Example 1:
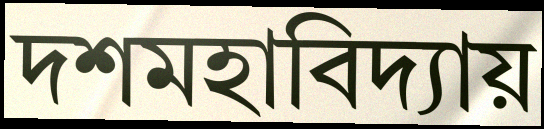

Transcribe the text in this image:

দশমহাবিদ্যায়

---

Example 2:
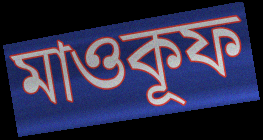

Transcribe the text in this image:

মাওকূফ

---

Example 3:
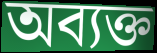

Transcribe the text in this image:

অব্যক্ত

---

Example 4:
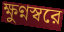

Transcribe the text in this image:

ক্ষুণ্নস্বরে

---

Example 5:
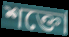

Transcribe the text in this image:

শক্তো